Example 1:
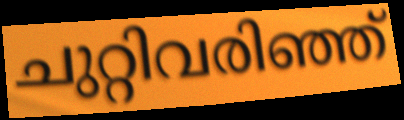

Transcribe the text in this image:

ചുറ്റിവരിഞ്ഞ്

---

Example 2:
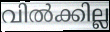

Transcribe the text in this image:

വിൽക്കില്ല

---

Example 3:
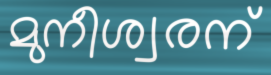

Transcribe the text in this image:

മുനീശ്വരന്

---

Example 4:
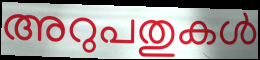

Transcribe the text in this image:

അറുപതുകൾ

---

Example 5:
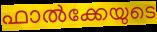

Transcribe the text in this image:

ഫാൽക്കേയുടെ